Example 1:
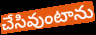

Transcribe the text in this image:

చేసివుంటాను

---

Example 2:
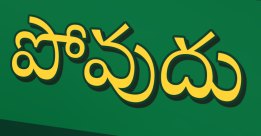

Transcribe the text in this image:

పోవుదు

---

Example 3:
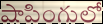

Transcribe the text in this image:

షాపింగులో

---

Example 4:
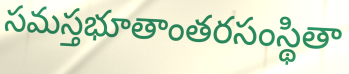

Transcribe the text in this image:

సమస్తభూతాంతరసంస్థితా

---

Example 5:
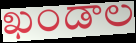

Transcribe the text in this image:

ఖండాల